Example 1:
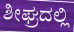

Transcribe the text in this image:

ಶೀಘ್ರದಲ್ಲಿ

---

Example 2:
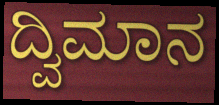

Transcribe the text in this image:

ದ್ವಿಮಾನ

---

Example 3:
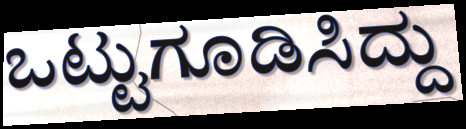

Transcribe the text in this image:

ಒಟ್ಟುಗೂಡಿಸಿದ್ದು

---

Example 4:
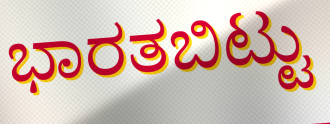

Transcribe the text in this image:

ಭಾರತಬಿಟ್ಟು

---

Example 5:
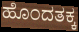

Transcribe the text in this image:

ಹೊಂದತಕ್ಕ